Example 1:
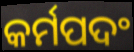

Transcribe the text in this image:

କର୍ମପଦଂ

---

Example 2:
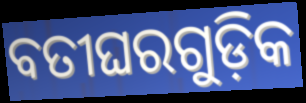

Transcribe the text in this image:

ବତୀଘରଗୁଡ଼ିକ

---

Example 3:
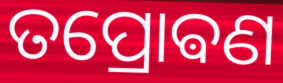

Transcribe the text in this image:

ତପ୍ରୋଵଣ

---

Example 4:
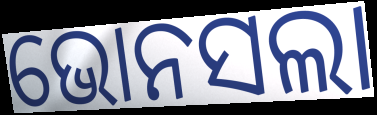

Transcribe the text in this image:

ଭୋନସଲା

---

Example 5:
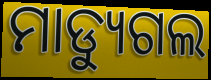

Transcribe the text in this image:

ମାଡ୍ୟୁଗଲ